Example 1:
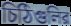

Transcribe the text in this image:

চিঠিগুলির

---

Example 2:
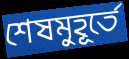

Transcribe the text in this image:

শেষমুহূর্তে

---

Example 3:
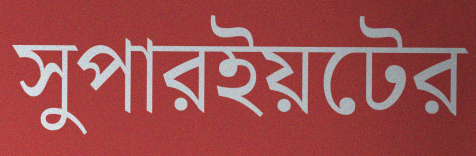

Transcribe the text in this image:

সুপারইয়টের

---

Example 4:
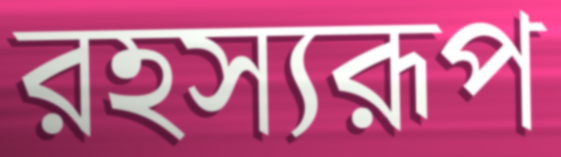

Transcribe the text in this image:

রহস্যরূপ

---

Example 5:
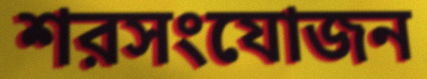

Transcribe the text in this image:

শরসংযোজন